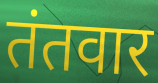
तंतवार